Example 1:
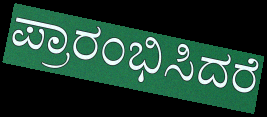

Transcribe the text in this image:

ಪ್ರಾರಂಭಿಸಿದರೆ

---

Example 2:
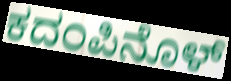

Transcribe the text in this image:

ಕದಂಪಿನೊಳ್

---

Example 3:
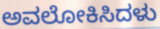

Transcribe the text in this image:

ಅವಲೋಕಿಸಿದಳು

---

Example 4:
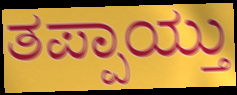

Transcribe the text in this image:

ತಪ್ಪಾಯ್ತು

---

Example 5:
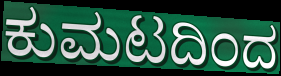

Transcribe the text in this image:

ಕುಮಟದಿಂದ